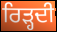
ਰਿੜ੍ਹਦੀ